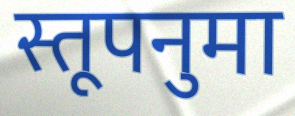
स्तूपनुमा